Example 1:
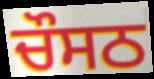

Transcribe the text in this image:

ਚੌਸਠ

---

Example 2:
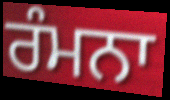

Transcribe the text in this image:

ਰੰਮਨਾ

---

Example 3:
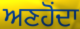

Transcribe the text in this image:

ਅਣਹੋਂਦਾ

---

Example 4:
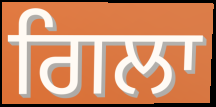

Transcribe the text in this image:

ਗਿਲਾ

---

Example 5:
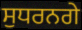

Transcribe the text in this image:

ਸੁਧਰਨਗੇ